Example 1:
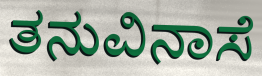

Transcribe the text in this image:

ತನುವಿನಾಸೆ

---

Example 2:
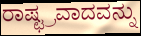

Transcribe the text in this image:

ರಾಷ್ಟ್ರವಾದವನ್ನು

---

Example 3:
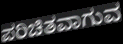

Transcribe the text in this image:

ಪರಿಚಿತವಾಗುವ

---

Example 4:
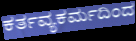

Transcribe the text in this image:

ಕರ್ತವ್ಯಕರ್ಮದಿಂದ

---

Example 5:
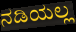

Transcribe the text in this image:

ನಡಿಯಲ್ಲ